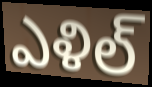
ఎళిల్